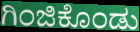
ಗಿಂಜಿಕೊಂಡು